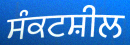
ਸੰਕਟਸ਼ੀਲ